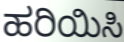
ಹರಿಯಿಸಿ